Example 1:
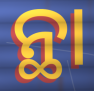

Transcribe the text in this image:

ନ୍ଥା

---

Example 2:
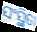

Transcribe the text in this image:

ସଂସ୍ଥିତା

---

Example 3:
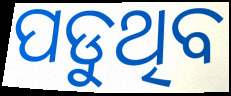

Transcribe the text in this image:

ପଡୁଥିବ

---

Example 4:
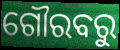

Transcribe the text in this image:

ଗୌରବରୁ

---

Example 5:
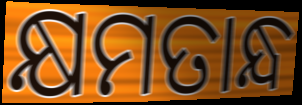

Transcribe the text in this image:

କ୍ଷମତାନ୍ଧ